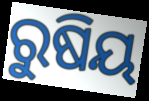
ରୁଷିୟ